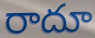
రాదూ